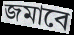
জমাবে